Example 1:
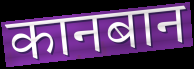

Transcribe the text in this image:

कानबान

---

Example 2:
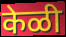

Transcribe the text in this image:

केळी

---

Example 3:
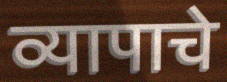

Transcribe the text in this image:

व्यापाचे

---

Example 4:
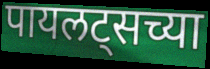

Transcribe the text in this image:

पायलट्सच्या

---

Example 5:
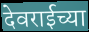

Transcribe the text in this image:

देवराईच्या